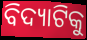
ବିଦ୍ୟାଟିକୁ